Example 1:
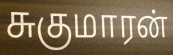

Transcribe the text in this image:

சுகுமாரன்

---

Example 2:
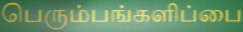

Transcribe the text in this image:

பெரும்பங்களிப்பை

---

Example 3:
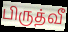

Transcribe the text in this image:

பிருத்வீ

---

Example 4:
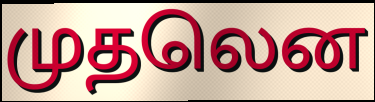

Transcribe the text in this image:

முதலென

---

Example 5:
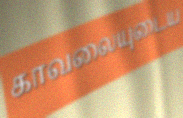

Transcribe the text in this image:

காவலையுடைய